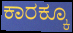
ಕಾರಕ್ಕೂ